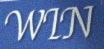
WIN